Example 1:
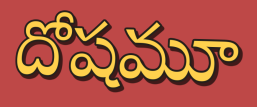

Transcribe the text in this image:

దోషమూ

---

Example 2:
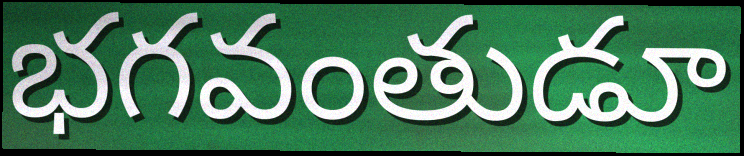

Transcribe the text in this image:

భగవంతుడూ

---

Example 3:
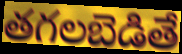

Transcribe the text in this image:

తగలబెడితే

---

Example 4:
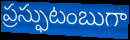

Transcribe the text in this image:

ప్రస్ఫుటంబుగా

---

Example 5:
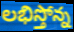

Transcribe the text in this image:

లభిస్తోన్న